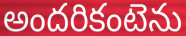
అందరికంటెను